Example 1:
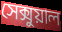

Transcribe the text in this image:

সেক্সুয়াল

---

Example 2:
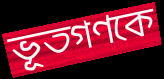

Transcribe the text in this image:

ভূতগণকে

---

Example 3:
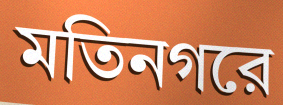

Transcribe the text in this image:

মতিনগরে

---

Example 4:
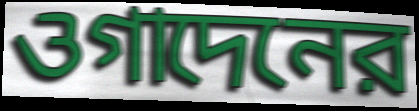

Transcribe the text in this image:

ওগাদেনের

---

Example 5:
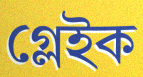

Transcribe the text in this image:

গ্লেইক